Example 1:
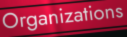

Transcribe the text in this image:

Organizations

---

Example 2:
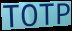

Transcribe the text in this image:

TOTP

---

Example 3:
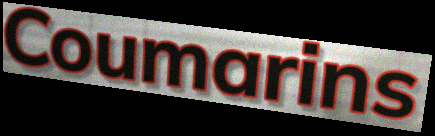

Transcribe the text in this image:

Coumarins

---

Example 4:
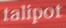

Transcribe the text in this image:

talipot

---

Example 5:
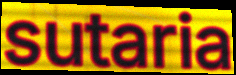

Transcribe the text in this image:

sutaria